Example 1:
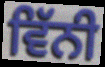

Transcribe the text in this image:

ਵਿੱਨੀ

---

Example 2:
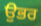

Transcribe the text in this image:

ਉਭਰ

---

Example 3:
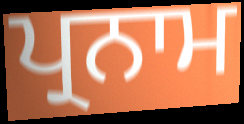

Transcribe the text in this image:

ਪ੍ਰਨਾਮ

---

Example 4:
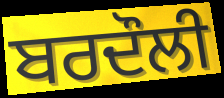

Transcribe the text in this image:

ਬਰਦੌਲੀ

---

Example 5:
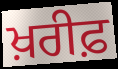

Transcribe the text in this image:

ਖ਼ਰੀਫ਼